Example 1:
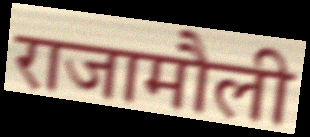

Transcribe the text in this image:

राजामौली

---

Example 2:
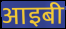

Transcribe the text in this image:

आइबी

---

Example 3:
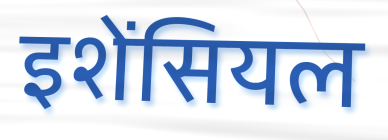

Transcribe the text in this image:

इशेंसियल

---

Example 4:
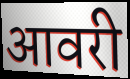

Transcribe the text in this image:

आवरी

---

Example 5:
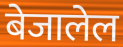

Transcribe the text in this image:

बेजालेल